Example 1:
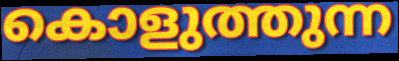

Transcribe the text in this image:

കൊളുത്തുന്ന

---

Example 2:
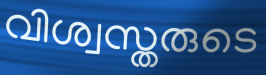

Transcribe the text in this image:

വിശ്വസ്തരുടെ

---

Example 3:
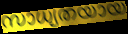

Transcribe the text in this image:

സാധ്യതയായ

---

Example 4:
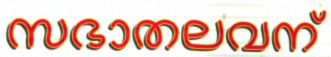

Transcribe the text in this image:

സഭാതലവന്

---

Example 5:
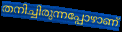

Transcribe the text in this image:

തനിച്ചിരുന്നപ്പോഴാണ്